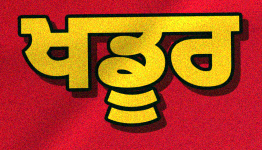
ਖਡੂਰ